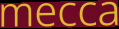
mecca